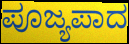
ಪೂಜ್ಯಪಾದ